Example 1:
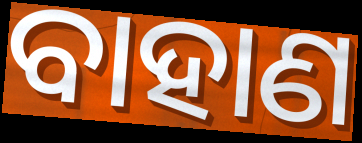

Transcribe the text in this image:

ବାହାଣ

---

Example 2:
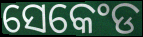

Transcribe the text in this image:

ସେକେଂଡ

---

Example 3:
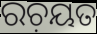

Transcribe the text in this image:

ରଚ଼ୟତ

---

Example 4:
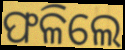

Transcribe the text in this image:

ଫଳିଲେ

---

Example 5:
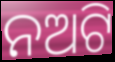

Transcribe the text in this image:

ନଅଟି